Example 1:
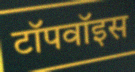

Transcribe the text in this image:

टॉपवॉइस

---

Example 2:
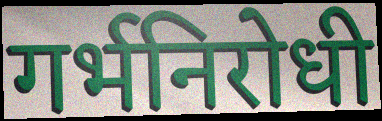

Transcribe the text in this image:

गर्भनिरोधी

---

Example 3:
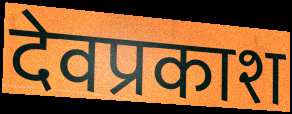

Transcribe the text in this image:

देवप्रकाश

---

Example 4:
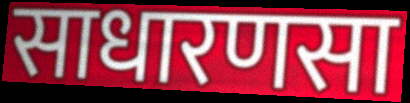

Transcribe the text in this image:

साधारणसा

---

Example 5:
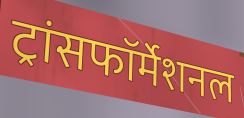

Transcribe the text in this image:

ट्रांसफॉर्मेशनल